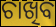
ଚାଖିବ